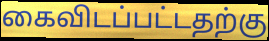
கைவிடப்பட்டதற்கு